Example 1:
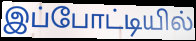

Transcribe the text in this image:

இப்போட்டியில்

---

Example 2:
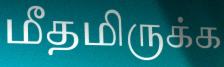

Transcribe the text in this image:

மீதமிருக்க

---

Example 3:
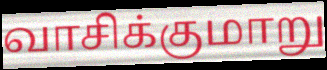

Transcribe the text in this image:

வாசிக்குமாறு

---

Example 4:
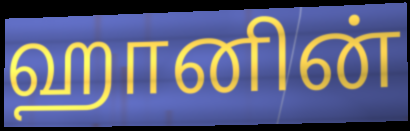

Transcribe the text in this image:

ஹானின்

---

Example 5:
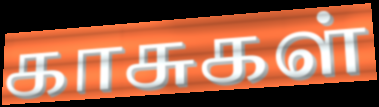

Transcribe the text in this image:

காசுகள்